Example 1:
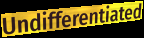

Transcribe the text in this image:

Undifferentiated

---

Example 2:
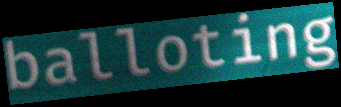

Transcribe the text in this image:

balloting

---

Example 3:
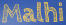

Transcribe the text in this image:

Malhi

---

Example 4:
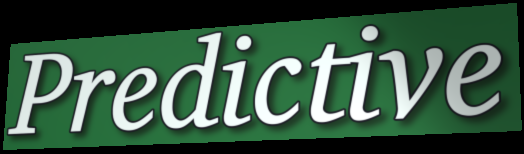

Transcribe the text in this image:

Predictive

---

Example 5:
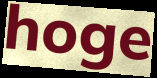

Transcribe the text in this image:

hoge